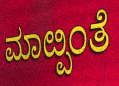
ಮಾೞ್ಪಂತೆ